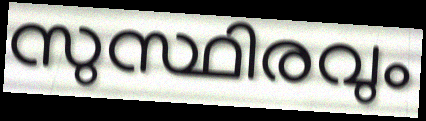
സുസ്ഥിരവും